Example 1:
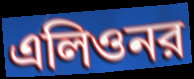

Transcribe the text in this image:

এলিওনর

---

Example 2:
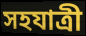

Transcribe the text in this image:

সহযাত্রী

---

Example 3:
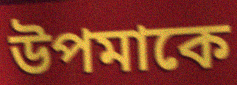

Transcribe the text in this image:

উপমাকে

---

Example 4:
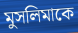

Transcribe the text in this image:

মুসলিমাকে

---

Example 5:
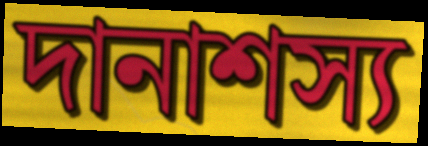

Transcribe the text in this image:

দানাশস্য